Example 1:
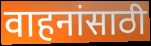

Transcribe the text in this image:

वाहनांसाठी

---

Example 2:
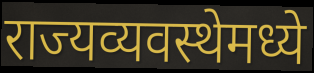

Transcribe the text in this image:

राज्यव्यवस्थेमध्ये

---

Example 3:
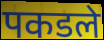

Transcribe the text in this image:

पकडले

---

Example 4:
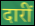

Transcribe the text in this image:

दारीं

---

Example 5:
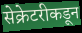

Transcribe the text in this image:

सेक्रेटरीकडून